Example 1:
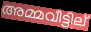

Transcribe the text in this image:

അമ്മവീട്ടില്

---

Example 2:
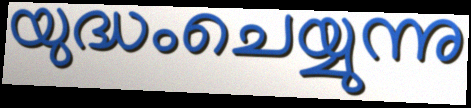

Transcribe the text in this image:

യുദ്ധംചെയ്യുന്നു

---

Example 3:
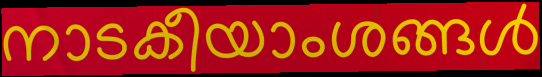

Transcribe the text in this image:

നാടകീയാംശങ്ങൾ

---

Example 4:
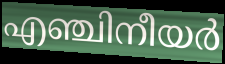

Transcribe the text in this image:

എഞ്ചിനീയർ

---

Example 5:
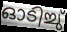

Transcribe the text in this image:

ഓടിച്ചു്